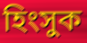
হিংসুক